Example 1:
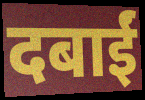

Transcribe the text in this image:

दबाईं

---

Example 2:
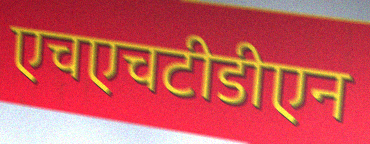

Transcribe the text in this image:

एचएचटीडीएन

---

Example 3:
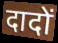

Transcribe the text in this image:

दादों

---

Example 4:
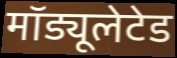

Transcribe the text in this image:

मॉड्यूलेटेड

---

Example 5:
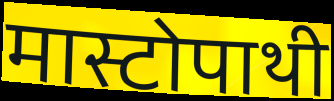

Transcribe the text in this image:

मास्टोपाथी